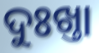
ଦୁଃଖ୍ତା